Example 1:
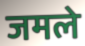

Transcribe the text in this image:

जमले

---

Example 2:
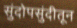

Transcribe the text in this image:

सुंदोपसुंदीतून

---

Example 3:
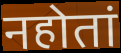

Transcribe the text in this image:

नहोतां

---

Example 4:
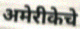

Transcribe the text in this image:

अमेरीकेचे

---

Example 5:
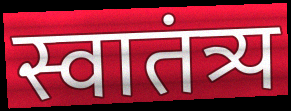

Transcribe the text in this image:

स्‍वातंत्र्य